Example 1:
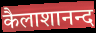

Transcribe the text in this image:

कैलाशानन्द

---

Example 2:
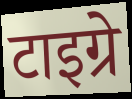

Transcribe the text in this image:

टाइग्रे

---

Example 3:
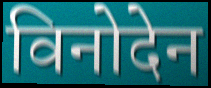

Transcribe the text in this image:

विनोदेन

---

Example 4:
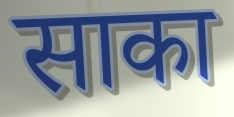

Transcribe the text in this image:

साका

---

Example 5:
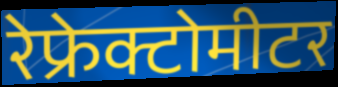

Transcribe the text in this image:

रेफ्रेक्टोमीटर